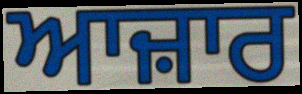
ਆਜ਼ਾਰ